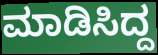
ಮಾಡಿಸಿದ್ದ